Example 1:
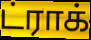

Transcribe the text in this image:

ட்ராக்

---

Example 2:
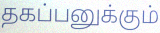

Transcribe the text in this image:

தகப்பனுக்கும்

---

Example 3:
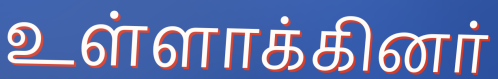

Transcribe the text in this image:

உள்ளாக்கினர்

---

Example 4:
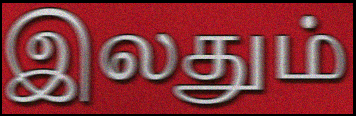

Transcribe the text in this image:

இலதும்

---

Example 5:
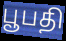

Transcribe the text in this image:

பூபதி